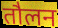
तौलन